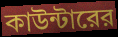
কাউন্টারের